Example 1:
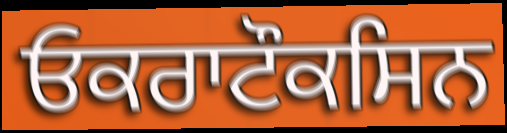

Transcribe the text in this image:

ਓਕਰਾਟੌਕਸਿਨ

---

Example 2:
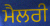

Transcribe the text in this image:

ਮੈਲਰੀ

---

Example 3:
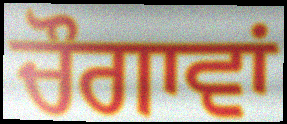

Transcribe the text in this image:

ਚੌਗਾਵਾਂ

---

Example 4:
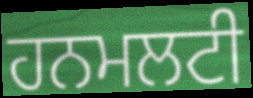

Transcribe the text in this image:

ਹਨਮਲਟੀ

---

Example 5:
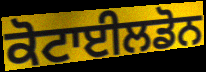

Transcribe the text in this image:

ਕੋਟਾਈਲਡੋਨ